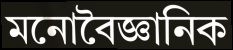
মনোবৈজ্ঞানিক